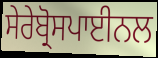
ਸੇਰੇਬ੍ਰੋਸਪਾਈਨਲ